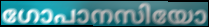
ഗോപാനസിയോ